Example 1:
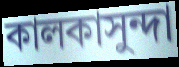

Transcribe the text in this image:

কালকাসুন্দা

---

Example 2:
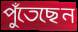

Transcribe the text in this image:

পুঁতেছেন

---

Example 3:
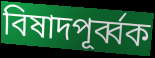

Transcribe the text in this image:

বিষাদপূর্ব্বক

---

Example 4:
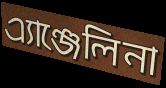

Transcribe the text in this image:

এ্যাঞ্জেলিনা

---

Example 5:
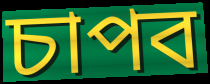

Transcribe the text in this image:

চাপব